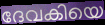
ദേവകിയെ